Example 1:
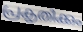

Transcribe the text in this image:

പ്രകൃതിക്കും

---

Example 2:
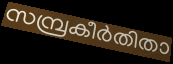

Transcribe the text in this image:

സമ്പ്രകീർതിതാ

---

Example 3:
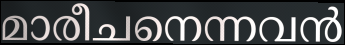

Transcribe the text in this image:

മാരീചനെന്നവൻ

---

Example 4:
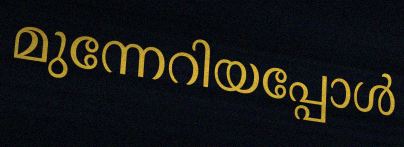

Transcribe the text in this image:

മുന്നേറിയപ്പോൾ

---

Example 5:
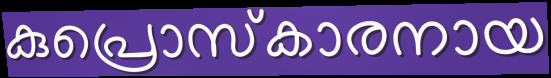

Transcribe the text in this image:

കുപ്രൊസ്കാരനായ